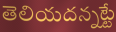
తెలియదన్నట్టే